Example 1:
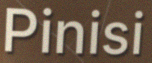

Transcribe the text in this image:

Pinisi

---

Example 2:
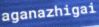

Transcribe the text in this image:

aganazhigai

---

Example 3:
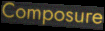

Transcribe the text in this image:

Composure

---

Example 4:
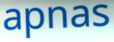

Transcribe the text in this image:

apnas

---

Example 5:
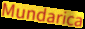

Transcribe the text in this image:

Mundarica